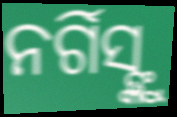
ନର୍ଗିସ୍ଙ୍କୁ